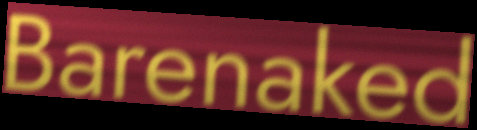
Barenaked